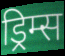
ड्रिम्स